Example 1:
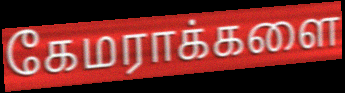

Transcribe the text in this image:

கேமராக்களை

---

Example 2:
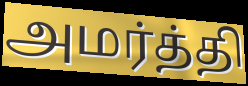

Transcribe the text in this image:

அமர்த்தி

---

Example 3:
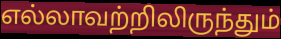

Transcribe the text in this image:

எல்லாவற்றிலிருந்தும்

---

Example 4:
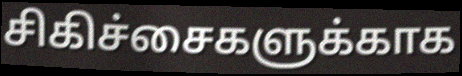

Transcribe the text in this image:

சிகிச்சைகளுக்காக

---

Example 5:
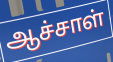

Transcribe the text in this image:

ஆச்சாள்